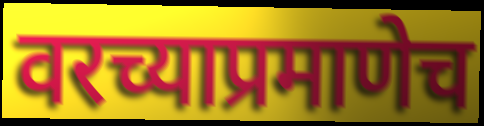
वरच्याप्रमाणेच